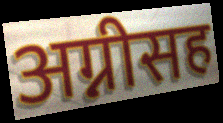
अग्नीसह